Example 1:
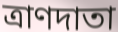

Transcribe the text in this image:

ত্রাণদাতা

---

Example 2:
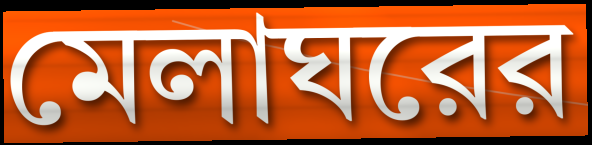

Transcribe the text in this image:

মেলাঘরের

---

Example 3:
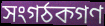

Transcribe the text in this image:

সংগঠকগণ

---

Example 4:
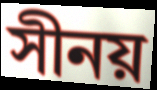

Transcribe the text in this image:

সীনয়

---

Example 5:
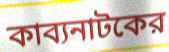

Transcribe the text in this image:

কাব্যনাটকের